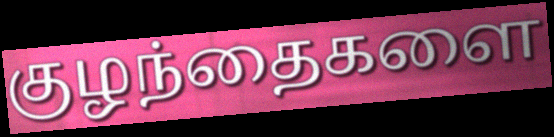
குழந்தைகளை